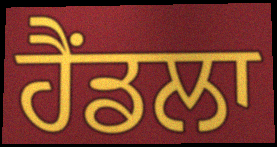
ਹੈਂਡਲਾ